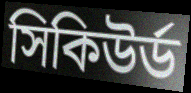
সিকিউর্ড